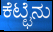
ಕೆಟ್ಟೆನು